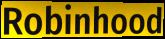
Robinhood